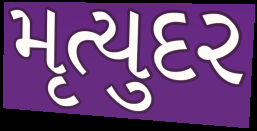
મૃત્યુદર